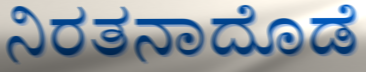
ನಿರತನಾದೊಡೆ